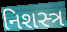
નિશસ્ત્ર